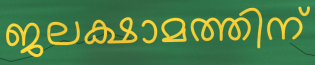
ജലക്ഷാമത്തിന്